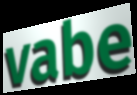
vabe